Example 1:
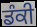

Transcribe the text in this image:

ਡੰਕੀ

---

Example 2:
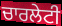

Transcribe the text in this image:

ਚਾਰਲੇਟੀ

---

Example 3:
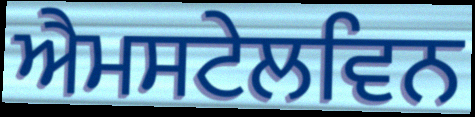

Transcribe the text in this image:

ਐਮਸਟੇਲਵਿਨ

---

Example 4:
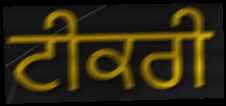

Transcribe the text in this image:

ਟੀਕਰੀ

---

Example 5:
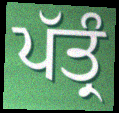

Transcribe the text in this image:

ਪੱਤ੍ਰੰ